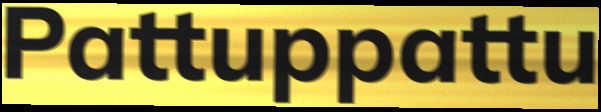
Pattuppattu